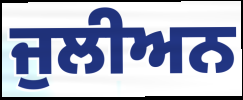
ਜੁਲੀਅਨ